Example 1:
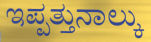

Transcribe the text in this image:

ಇಪ್ಪತ್ತುನಾಲ್ಕು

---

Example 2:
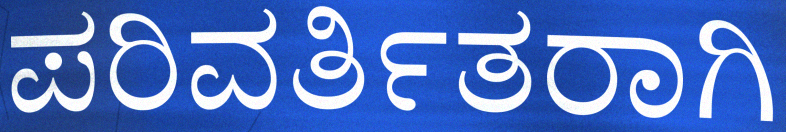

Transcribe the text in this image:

ಪರಿವರ್ತಿತರಾಗಿ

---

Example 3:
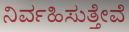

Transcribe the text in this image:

ನಿರ್ವಹಿಸುತ್ತೇವೆ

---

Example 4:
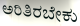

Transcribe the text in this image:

ಅರಿತಿರಬೇಕು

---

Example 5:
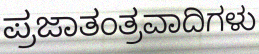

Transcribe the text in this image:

ಪ್ರಜಾತಂತ್ರವಾದಿಗಳು